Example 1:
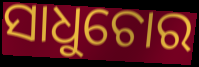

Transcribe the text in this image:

ସାଧୁଚୋର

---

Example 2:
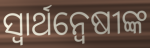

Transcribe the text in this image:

ସ୍ୱାର୍ଥନ୍ୱେଷୀଙ୍କ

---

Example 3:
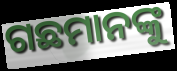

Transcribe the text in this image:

ଗଛମାନଙ୍କୁ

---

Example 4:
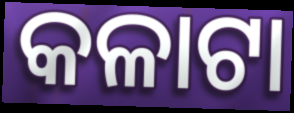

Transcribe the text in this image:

କଳାଟା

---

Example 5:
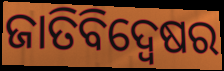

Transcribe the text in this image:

ଜାତିବିଦ୍ୱେଷର